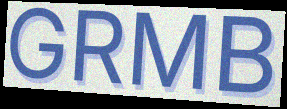
GRMB